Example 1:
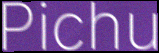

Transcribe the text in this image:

Pichu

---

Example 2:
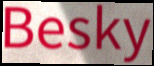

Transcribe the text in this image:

Besky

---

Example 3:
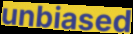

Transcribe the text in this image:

unbiased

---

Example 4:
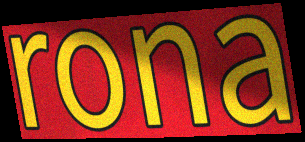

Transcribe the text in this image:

rona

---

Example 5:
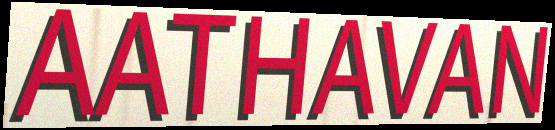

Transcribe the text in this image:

AATHAVAN